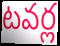
టవర్ల